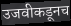
उजवीकडूनच